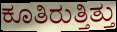
ಕೂತಿರುತ್ತಿತ್ತು